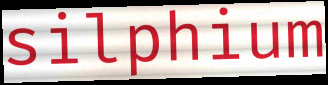
silphium